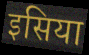
इसिया